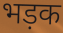
भड़क